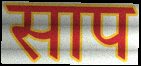
साप